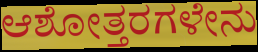
ಆಶೋತ್ತರಗಳೇನು